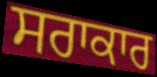
ਸਰਾਕਾਰ